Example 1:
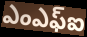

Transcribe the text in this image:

ఎంఎఫ్ఐ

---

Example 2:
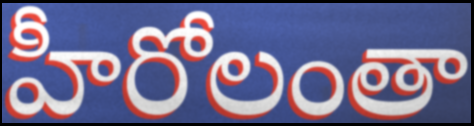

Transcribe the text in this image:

హీరోలంతా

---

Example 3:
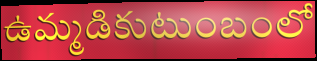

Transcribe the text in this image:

ఉమ్మడికుటుంబంలో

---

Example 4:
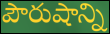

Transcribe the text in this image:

పౌరుషాన్ని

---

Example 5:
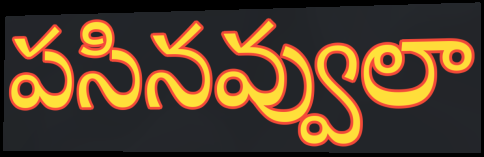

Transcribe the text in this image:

పసినవ్వులా